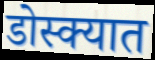
डोस्क्यात